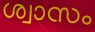
ശ്വാസം